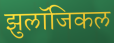
झुलॉजिकल